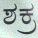
ಶಕ್ರ